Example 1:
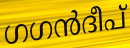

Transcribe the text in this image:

ഗഗൻദീപ്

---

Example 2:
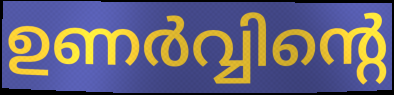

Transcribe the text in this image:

ഉണർവ്വിന്റെ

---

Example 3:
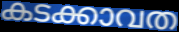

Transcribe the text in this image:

കടക്കാവത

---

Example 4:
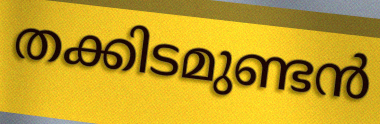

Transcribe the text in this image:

തക്കിടമുണ്ടൻ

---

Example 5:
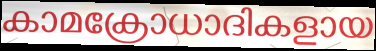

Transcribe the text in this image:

കാമക്രോധാദികളായ